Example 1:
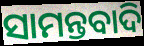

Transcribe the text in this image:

ସାମନ୍ତବାଦି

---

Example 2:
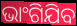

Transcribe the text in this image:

ଭାଂଗିଯିବ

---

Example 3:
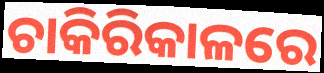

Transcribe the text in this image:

ଚାକିରିକାଳରେ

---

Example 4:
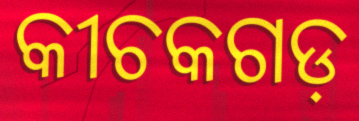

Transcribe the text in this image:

କୀଚକଗଡ଼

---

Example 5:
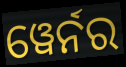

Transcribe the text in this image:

ୱେର୍ନର